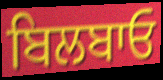
ਬਿਲਬਾਓ